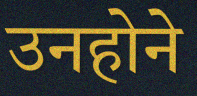
उनहोने